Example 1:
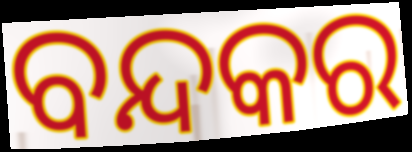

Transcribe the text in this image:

ବନ୍ଦକର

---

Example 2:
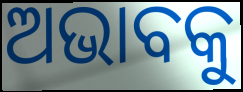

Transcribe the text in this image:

ଅଭାବକୁ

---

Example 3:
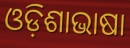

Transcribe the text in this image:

ଓଡ଼ିଶାଭାଷା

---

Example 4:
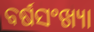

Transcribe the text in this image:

ବର୍ଷସଂଖ୍ୟା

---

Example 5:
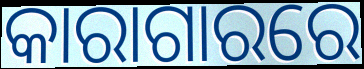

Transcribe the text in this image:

କାରାଗାରରେ